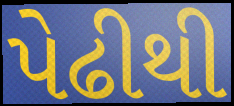
પેઢીથી